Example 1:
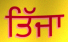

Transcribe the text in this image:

ਤਿੱਜਾ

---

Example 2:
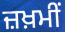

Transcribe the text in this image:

ਜ਼ਖ਼ਮੀਂ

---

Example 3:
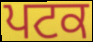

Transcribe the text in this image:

ਪਟਕ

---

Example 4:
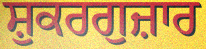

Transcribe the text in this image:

ਸ਼ੁਕਰਗੁਜ਼ਾਰ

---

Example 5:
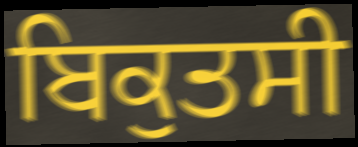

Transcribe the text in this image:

ਬਿਕੁਤਸੀ